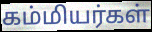
கம்மியர்கள்